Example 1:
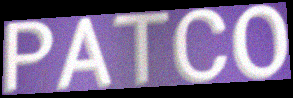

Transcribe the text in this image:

PATCO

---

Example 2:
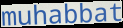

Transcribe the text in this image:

muhabbat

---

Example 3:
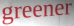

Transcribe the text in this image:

greener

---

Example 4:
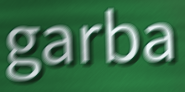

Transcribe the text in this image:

garba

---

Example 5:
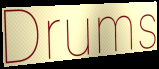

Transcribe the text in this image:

Drums